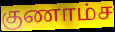
குணாம்ச